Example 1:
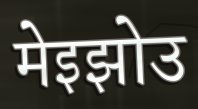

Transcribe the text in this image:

मेइझोउ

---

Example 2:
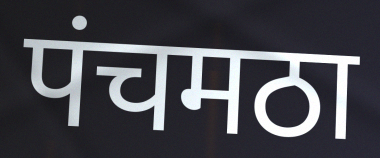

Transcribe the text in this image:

पंचमठा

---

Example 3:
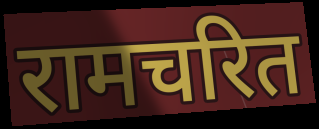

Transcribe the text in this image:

रामचरित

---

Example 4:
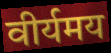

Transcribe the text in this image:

वीर्यमय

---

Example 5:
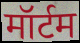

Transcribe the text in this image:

मॉर्टम